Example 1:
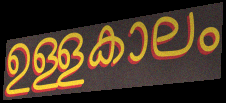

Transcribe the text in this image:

ഉള്ളകാലം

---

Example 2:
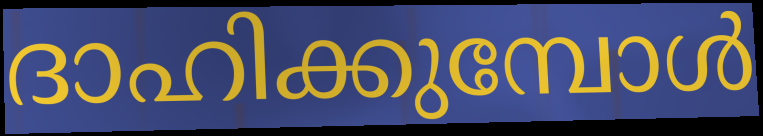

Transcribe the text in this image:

ദാഹിക്കുമ്പോൾ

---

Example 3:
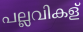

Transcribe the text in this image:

പല്ലവികള്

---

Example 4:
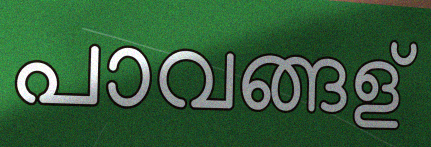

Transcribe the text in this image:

പാവങ്ങള്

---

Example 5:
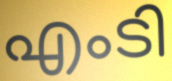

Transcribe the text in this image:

എംടി